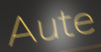
Aute